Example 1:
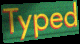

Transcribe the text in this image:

Typed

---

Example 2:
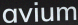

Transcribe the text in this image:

avium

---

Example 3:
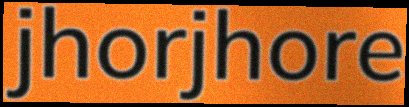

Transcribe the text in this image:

jhorjhore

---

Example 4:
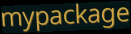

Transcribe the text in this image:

mypackage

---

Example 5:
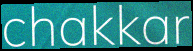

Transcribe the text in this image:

chakkar